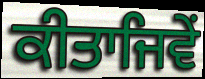
ਕੀਤਾਜਿਵੇਂ